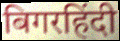
बिगरहिंदी